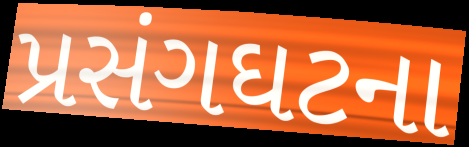
પ્રસંગઘટના